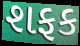
શફક